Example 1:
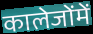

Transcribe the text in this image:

कालेजोंमें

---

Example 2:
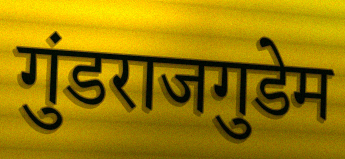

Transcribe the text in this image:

गुंडराजगुडेम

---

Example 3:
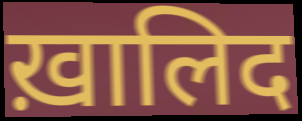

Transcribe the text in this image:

ख़ालिद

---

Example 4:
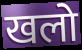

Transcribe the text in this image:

खलो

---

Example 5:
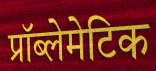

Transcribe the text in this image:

प्रॉब्लेमेटिक